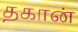
தகான்